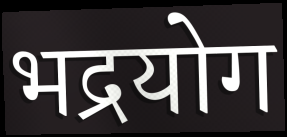
भद्रयोग